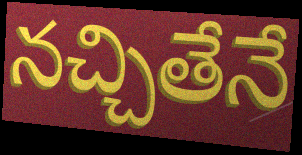
నచ్చితేనే